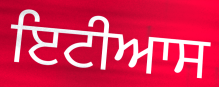
ਇਟੀਆਸ